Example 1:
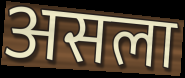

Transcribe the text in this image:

असला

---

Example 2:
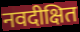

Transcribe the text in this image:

नवदीक्षित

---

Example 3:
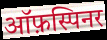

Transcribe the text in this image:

ऑफ़स्पिनर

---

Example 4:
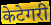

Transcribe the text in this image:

केटेगरी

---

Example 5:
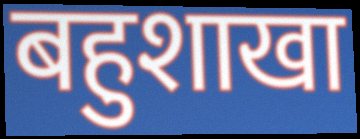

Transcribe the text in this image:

बहुशाखा